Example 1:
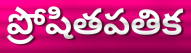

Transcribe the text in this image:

ప్రోషితపతిక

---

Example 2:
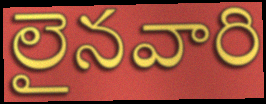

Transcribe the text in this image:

లైనవారి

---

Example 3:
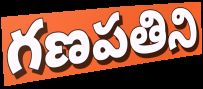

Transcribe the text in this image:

గణపతిని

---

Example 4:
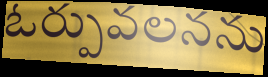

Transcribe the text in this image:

ఓర్పువలనను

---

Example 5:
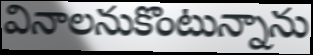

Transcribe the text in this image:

వినాలనుకొంటున్నాను